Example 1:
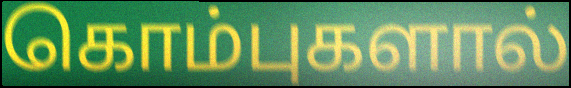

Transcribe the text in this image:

கொம்புகளால்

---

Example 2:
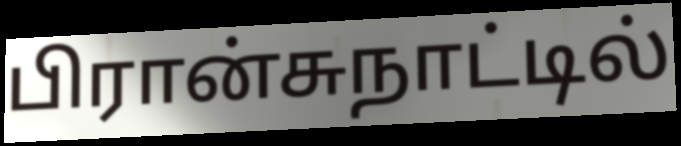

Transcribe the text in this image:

பிரான்சுநாட்டில்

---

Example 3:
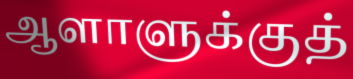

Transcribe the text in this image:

ஆளாளுக்குத்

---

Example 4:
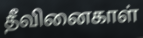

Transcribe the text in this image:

தீவினைகாள்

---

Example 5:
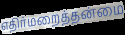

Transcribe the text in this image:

எதிர்மறைத்தன்மை